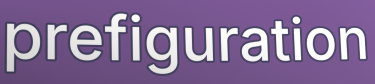
prefiguration